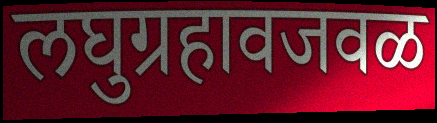
लघुग्रहावजवळ